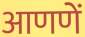
आणणें